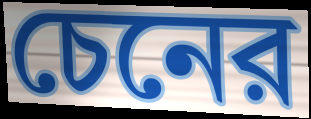
চেনের